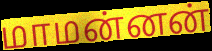
மாமன்னன்